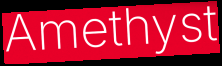
Amethyst